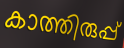
കാത്തിരുപ്പ്